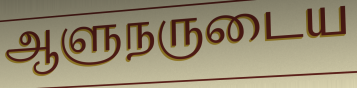
ஆளுநருடைய